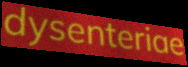
dysenteriae